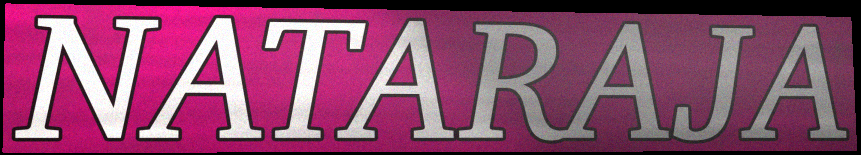
NATARAJA